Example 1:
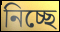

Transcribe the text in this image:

নিচ্ছে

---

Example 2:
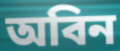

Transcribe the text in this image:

অবিন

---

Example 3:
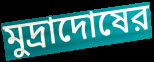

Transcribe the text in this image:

মুদ্রাদোষের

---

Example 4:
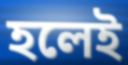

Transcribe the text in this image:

হলেই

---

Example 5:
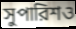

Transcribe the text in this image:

সুপারিশও